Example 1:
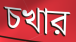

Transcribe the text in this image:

চখার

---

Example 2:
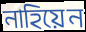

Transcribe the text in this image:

নাহিয়েন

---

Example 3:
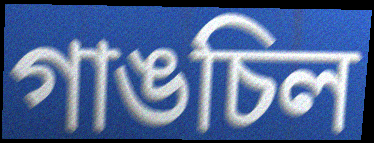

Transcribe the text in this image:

গাঙচিল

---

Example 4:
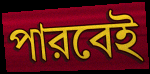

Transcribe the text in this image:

পারবেই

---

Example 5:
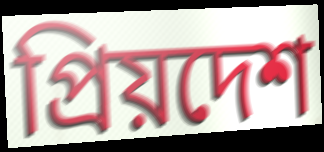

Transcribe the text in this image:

প্রিয়দেশ